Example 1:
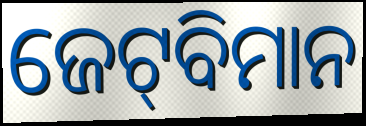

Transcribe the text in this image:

ଜେଟ୍‍ବିମାନ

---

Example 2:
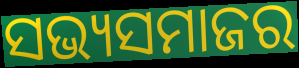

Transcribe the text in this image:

ସଭ୍ୟସମାଜର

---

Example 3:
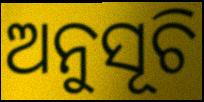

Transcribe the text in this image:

ଅନୁସୂଚି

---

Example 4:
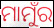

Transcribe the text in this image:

ମାମୁଁର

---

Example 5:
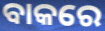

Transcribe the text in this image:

ବାକରେ